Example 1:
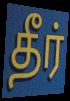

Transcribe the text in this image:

தீர்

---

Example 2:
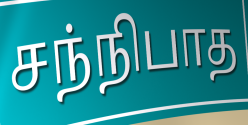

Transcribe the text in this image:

சந்நிபாத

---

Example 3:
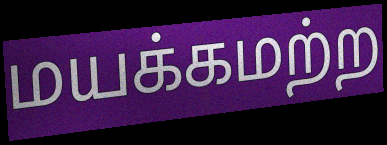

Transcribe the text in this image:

மயக்கமற்ற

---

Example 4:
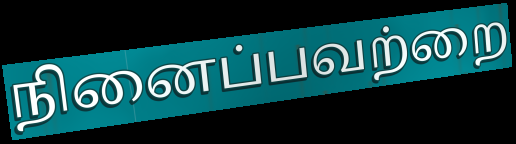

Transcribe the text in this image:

நினைப்பவற்றை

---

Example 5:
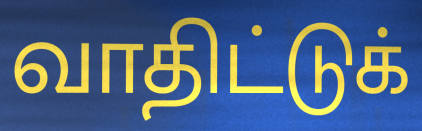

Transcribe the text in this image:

வாதிட்டுக்